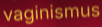
vaginismus